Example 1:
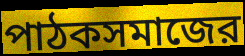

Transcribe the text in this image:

পাঠকসমাজের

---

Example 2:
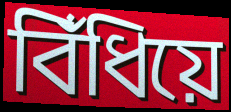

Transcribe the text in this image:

বিঁধিয়ে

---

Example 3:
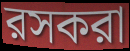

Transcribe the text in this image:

রসকরা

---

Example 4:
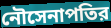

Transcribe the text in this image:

নৌসেনাপতির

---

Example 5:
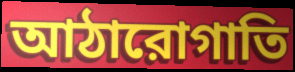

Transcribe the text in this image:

আঠারোগাতি